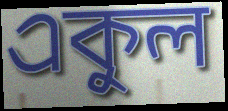
একুল